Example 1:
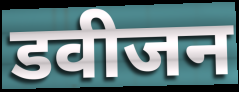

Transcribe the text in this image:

डवीजन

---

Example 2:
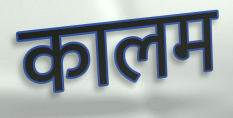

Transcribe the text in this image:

कालम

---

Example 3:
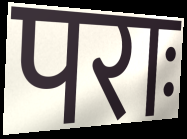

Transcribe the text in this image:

पराः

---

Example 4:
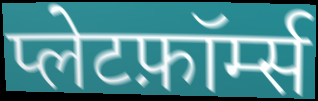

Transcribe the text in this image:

प्लेटफ़ॉर्म्स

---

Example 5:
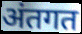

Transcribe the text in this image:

अंतगत